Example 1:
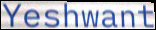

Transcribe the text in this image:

Yeshwant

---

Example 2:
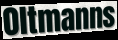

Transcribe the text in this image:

Oltmanns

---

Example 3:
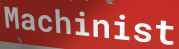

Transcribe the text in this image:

Machinist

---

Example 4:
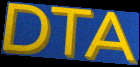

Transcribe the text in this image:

DTA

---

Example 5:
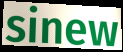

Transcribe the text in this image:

sinew